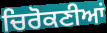
ਚਿਰੋਕਣੀਆਂ